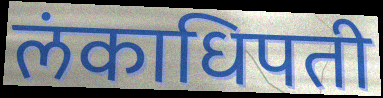
लंकाधिपती